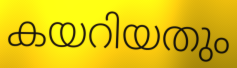
കയറിയതും